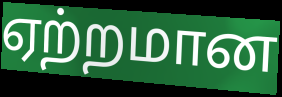
ஏற்றமான